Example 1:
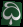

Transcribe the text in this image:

ಧಿ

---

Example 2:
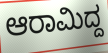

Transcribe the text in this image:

ಆರಾಮಿದ್ದ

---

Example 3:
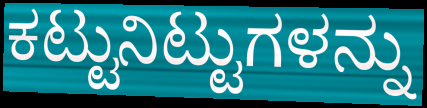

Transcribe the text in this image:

ಕಟ್ಟುನಿಟ್ಟುಗಳನ್ನು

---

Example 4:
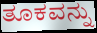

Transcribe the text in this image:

ತೂಕವನ್ನು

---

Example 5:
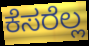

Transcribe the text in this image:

ಕೆಸರೆಲ್ಲ